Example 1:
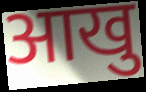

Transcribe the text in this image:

आखु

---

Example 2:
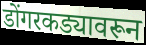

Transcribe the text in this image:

डोंगरकड्यावरून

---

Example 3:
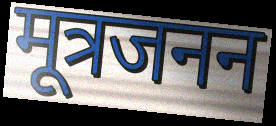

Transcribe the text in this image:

मूत्रजनन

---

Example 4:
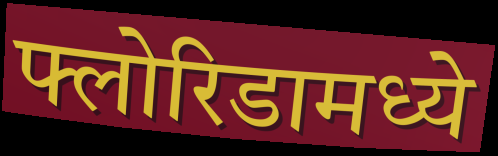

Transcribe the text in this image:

फ्लोरिडामध्ये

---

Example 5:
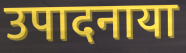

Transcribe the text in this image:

उपादनाया